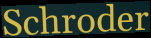
Schroder